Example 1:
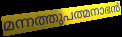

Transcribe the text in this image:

മന്നത്തുപത്മനാഭൻ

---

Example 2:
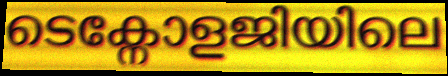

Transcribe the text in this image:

ടെക്നോളജിയിലെ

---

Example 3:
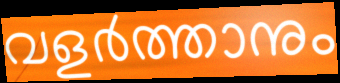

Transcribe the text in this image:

വളർത്താനും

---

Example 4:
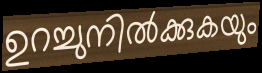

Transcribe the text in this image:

ഉറച്ചുനിൽക്കുകയും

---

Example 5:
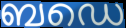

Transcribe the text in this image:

ബഡെ